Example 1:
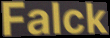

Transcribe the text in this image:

Falck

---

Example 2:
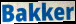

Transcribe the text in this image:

Bakker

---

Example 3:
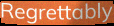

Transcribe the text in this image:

Regrettably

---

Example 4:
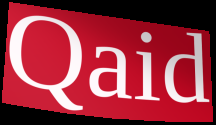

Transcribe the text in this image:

Qaid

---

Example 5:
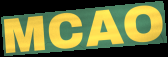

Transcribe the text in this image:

MCAO